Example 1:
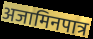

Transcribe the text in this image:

अजामिनपात्र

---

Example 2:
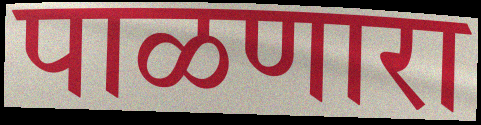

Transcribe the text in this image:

पाळणारा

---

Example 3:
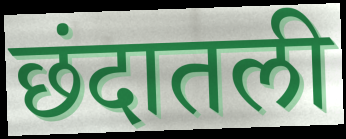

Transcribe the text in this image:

छंदातली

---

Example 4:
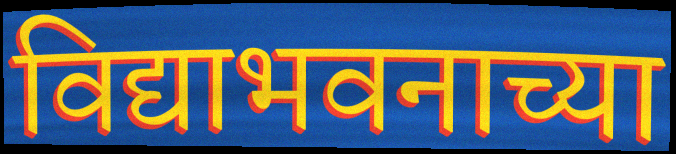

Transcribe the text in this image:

विद्याभवनाच्या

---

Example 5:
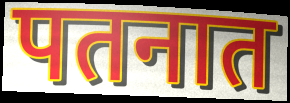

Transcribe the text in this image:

पतनात